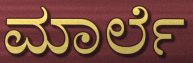
ಮಾರ್ಲೆ